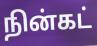
நின்கட்